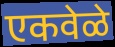
एकवेळे